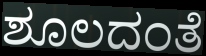
ಶೂಲದಂತೆ